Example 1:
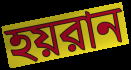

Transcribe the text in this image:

হয়রান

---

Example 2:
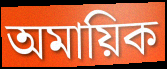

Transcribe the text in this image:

অমায়িক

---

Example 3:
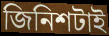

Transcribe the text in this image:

জিনিশটাই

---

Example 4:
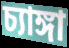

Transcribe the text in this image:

চ্যাঙ্গা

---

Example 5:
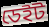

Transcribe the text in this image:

ডেইট